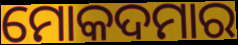
ମୋକଦମାର